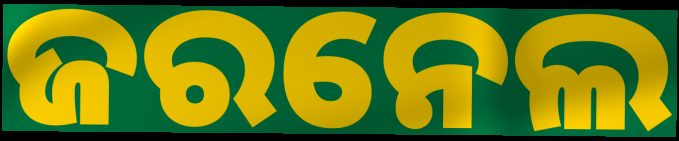
ଜରନେଲ